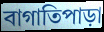
বাগাতিপাড়া